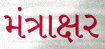
મંત્રાક્ષર